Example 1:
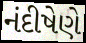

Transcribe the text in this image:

નંદીષેણે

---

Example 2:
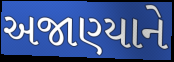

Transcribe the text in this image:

અજાણ્યાને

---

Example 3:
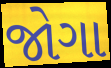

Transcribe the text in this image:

જોગા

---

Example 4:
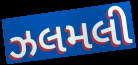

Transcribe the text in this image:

ઝલમલી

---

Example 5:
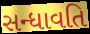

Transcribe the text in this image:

સન્ધાવતિ